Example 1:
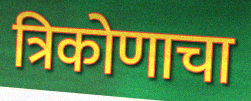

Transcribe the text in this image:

त्रिकोणाचा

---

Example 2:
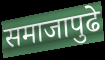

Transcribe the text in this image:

समाजापुढे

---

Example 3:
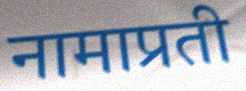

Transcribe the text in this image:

नामाप्रती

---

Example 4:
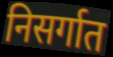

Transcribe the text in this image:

निसर्गात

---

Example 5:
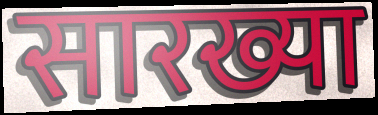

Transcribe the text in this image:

सारख्या